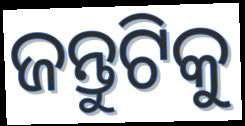
ଜନ୍ତୁଟିକୁ